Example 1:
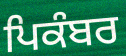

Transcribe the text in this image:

ਪਿਕੰਬਰ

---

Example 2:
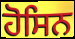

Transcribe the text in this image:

ਹੋਸਿਨ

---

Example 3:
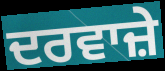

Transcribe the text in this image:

ਦਰਵਾਜ਼ੇ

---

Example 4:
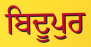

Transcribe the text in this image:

ਬਿਦੂਪੁਰ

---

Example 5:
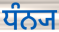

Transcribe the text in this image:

ਧੰਨ੍ਯ